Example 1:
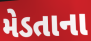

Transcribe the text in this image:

મેડતાના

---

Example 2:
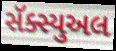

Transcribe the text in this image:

સૅક્સ્યુઅલ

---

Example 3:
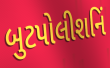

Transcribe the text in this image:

બુટપોલીશનિં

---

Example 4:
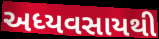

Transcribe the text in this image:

અધ્યવસાયથી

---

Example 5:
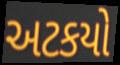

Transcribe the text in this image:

અટકયો